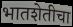
भातशेतीचा